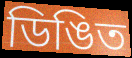
ডিঙিত